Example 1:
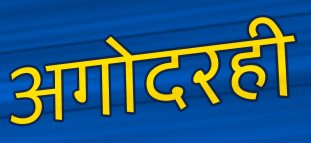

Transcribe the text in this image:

अगोदरही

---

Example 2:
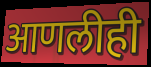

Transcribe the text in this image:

आणलीही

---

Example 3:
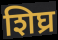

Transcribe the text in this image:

शिघ्र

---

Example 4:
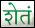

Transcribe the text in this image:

शेतं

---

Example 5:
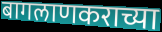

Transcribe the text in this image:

बागलाणकराच्या